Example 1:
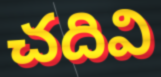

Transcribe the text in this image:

చదివి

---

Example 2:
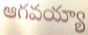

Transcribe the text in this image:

ఆగవయ్యా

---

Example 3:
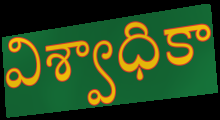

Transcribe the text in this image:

విశ్వాధికా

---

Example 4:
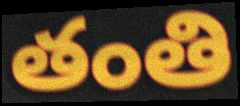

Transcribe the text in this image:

తంతి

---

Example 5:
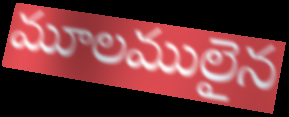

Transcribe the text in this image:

మూలములైన